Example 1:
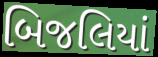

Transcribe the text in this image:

બિજલિયાં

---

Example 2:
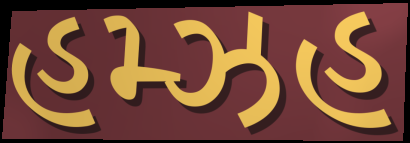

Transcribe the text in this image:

હમ્ઝહ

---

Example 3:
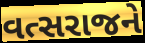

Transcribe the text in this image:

વત્સરાજને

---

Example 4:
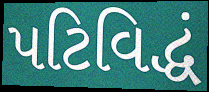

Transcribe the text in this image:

પટિવિદ્ધં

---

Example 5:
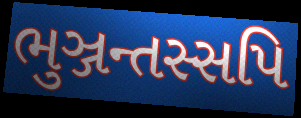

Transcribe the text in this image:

ભુઞ્જન્તસ્સપિ